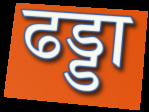
ढड्डा